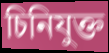
চিনিযুক্ত